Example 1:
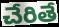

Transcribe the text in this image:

చేరితే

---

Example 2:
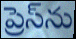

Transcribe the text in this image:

ప్రెస్‌ను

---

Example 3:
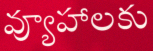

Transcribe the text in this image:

వ్యూహాలకు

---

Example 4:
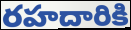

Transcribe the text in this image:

రహదారికి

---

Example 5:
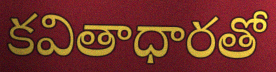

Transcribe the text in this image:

కవితాధారతో